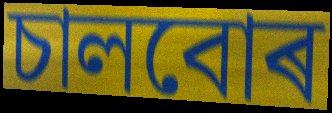
চালবোৰ